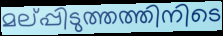
മല്പ്പിടുത്തത്തിനിടെ